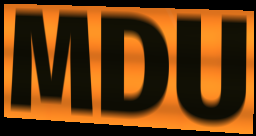
MDU